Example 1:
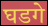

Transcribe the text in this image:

घडगे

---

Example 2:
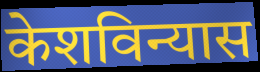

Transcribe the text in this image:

केशविन्यास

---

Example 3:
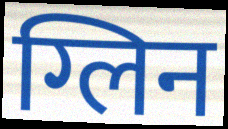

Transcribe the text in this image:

ग्लिन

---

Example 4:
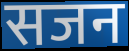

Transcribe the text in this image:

सजन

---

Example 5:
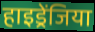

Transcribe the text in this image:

हाइड्रेंजिया